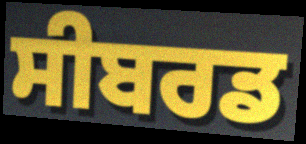
ਸੀਬਰਡ